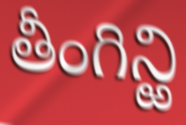
తీంగిన్ఱి